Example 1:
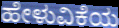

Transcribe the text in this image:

ಹೇಳುವಿಕೆಯ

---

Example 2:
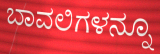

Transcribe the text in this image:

ಬಾವಲಿಗಳನ್ನೂ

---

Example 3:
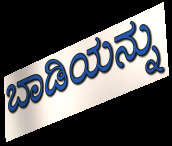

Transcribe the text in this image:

ಬಾಡಿಯನ್ನು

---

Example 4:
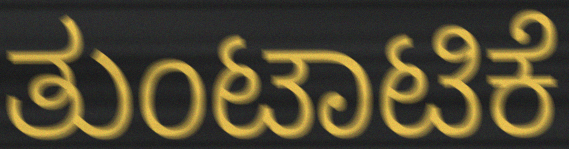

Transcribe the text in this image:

ತುಂಟಾಟಿಕೆ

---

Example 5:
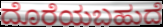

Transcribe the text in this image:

ದೊರೆಯಬಹುದೆ